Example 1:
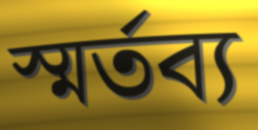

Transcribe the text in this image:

স্মৰ্তব্য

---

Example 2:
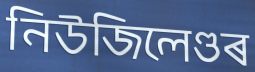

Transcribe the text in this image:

নিউজিলেণ্ডৰ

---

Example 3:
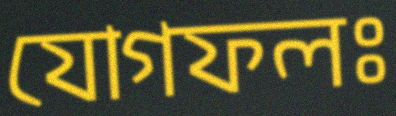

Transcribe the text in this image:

যোগফলঃ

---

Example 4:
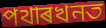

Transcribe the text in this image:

পথাৰখনত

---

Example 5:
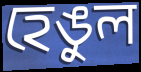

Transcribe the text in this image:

হেঙুল